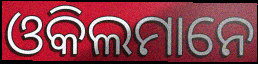
ଓକିଲମାନେ